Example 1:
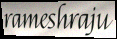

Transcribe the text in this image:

rameshraju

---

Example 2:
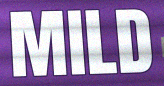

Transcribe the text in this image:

MILD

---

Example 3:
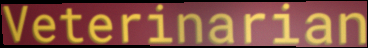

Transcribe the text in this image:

Veterinarian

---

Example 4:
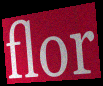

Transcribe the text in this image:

flor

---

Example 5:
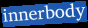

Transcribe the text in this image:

innerbody